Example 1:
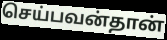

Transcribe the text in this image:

செய்பவன்தான்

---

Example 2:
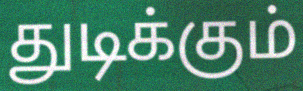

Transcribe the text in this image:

துடிக்கும்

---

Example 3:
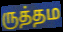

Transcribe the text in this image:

ருத்தம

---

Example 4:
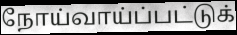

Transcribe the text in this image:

நோய்வாய்ப்பட்டுக்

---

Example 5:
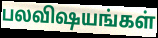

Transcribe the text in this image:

பலவிஷயங்கள்